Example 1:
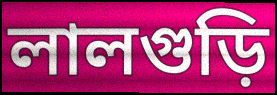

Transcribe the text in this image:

লালগুড়ি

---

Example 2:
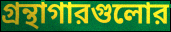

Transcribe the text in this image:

গ্রন্থাগারগুলোর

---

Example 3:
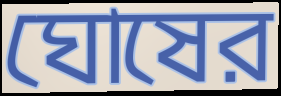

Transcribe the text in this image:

ঘোষের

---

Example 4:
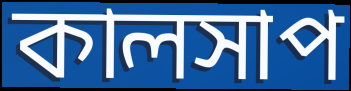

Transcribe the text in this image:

কালসাপ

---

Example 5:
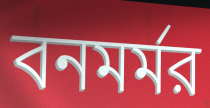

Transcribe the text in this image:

বনমর্মর